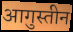
आगुस्तीन